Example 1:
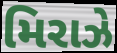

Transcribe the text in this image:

મિરાઝે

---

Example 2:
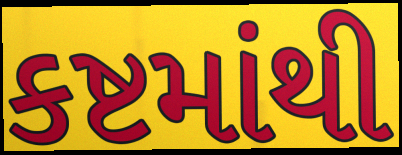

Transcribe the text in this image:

કષ્ટમાંથી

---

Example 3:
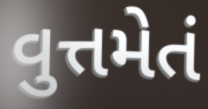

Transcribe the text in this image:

વુત્તમેતં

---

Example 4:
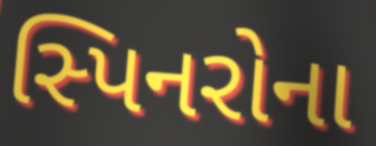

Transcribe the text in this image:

સ્પિનરોના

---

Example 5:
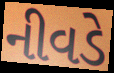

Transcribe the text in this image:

નીવડે